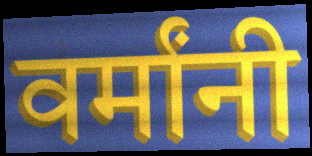
वर्मांनी